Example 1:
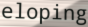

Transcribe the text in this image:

eloping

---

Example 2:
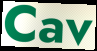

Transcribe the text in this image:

Cav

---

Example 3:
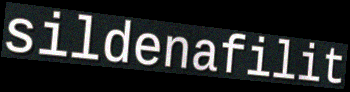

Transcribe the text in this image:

sildenafilit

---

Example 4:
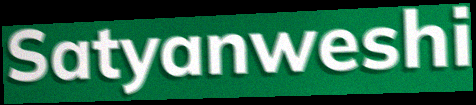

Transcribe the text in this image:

Satyanweshi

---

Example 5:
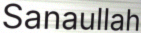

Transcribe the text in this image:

Sanaullah